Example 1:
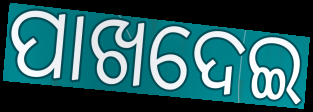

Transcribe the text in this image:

ପାଖଦେଇ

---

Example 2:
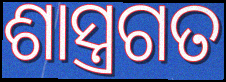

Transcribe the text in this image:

ଶାସ୍ତ୍ରଗତ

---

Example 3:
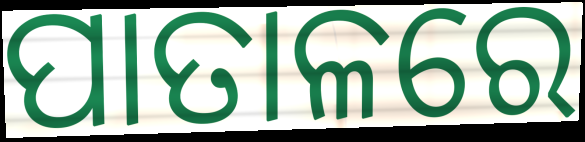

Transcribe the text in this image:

ପାତାଳରେ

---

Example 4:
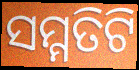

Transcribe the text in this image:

ସମ୍ମତିଟି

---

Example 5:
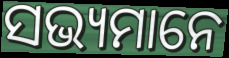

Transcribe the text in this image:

ସଭ୍ୟମାନେ